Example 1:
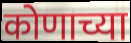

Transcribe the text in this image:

कोणाच्या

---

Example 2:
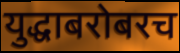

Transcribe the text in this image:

युद्धाबरोबरच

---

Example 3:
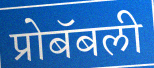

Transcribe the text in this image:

प्रोबॅबली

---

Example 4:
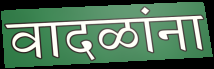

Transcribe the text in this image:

वादळांना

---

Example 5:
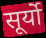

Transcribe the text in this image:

सूर्यो